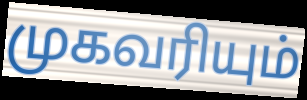
முகவரியும்